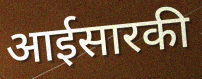
आईसारकी